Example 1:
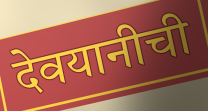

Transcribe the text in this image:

देवयानीची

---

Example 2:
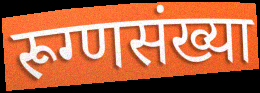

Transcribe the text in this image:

रूग्णसंख्या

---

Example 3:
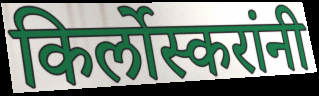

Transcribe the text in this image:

किर्लोस्करांनी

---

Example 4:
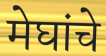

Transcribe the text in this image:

मेघांचे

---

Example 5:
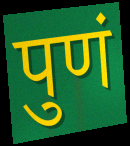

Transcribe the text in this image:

पुणं